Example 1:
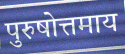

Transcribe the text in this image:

पुरुषोत्तमाय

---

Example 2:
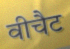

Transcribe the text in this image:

वीचैट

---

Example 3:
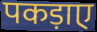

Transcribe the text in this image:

पकड़ाए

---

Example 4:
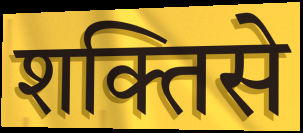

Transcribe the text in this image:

शक्तिसे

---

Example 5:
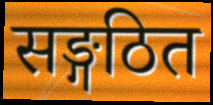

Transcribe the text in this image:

सङ्गठित